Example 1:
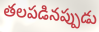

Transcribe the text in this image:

తలపడినప్పుడు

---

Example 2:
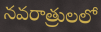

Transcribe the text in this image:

నవరాత్రులలో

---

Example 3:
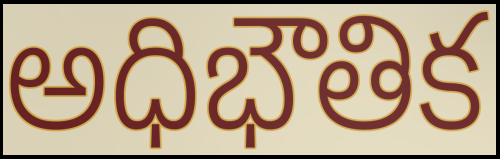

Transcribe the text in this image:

అధిభౌతిక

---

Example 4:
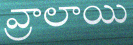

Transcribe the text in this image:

వ్రాలాయి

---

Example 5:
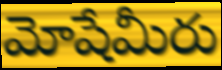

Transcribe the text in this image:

మోషేమీరు